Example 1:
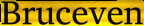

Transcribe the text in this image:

Bruceven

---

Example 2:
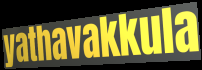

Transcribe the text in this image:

yathavakkula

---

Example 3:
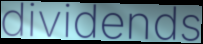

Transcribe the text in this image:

dividends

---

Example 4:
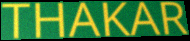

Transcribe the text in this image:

THAKAR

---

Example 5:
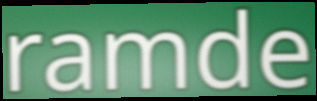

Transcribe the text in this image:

ramde